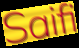
Saifi